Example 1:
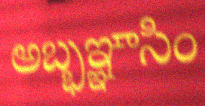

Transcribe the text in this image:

అబ్భఞ్ఞాసిం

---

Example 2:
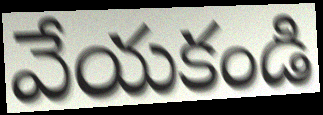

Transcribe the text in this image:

వేయకండి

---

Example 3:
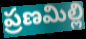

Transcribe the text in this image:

ప్రణమిల్లి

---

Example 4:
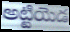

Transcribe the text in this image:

అట్టియెడ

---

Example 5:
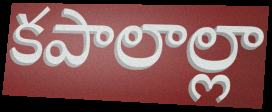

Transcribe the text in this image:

కపాలాల్లా